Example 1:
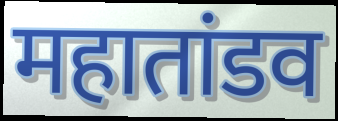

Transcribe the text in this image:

महातांडव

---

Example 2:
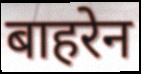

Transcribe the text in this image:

बाहरेन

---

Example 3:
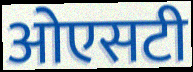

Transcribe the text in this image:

ओएसटी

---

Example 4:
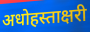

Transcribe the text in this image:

अधोहस्ताक्षरी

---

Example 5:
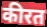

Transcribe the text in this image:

कीरत